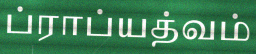
ப்ராப்யத்வம்